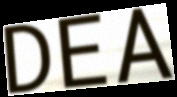
DEA